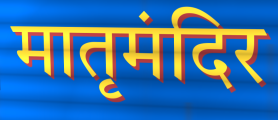
मातृमंदिर